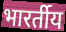
भारर्तीय